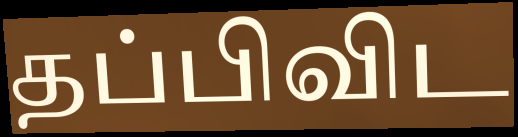
தப்பிவிட